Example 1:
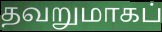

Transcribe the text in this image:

தவறுமாகப்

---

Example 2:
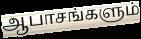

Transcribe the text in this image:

ஆபாசங்களும்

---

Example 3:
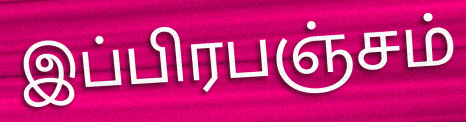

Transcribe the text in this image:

இப்பிரபஞ்சம்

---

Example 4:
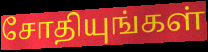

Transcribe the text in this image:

சோதியுங்கள்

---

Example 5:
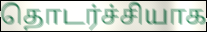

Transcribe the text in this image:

தொடர்ச்சியாக